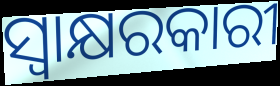
ସ୍ୱାକ୍ଷରକାରୀ